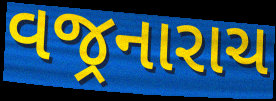
વજ્રનારાચ